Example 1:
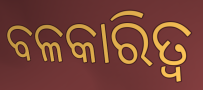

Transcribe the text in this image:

ବଳକାରିତ୍ୱ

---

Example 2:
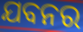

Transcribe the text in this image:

ଯବନର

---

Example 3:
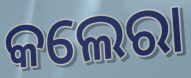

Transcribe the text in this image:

କଲେରା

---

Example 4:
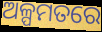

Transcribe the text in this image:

ଅଳ୍ପମତରେ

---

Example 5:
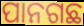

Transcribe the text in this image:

ପାନଗଛ